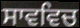
ਸਾਵਵਿਚ